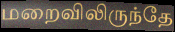
மறைவிலிருந்தே